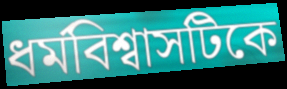
ধর্মবিশ্বাসটিকে